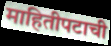
माहितीपटाची